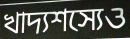
খাদ্যশস্যেও